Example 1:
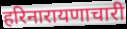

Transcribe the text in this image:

हरिनारायणाचारी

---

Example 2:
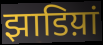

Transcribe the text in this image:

झाडिय़ां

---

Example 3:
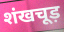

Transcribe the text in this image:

शंखचूड़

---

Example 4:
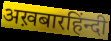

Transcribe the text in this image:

अख़बारहिंन्दी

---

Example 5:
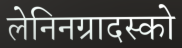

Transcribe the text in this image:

लेनिनग्रादस्को